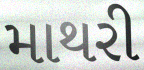
માથરી